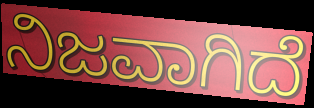
ನಿಜವಾಗಿದೆ